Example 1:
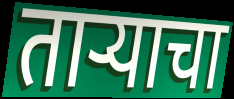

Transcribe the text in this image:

ताऱ्याचा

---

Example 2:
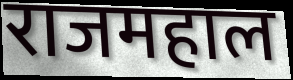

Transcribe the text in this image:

राजमहाल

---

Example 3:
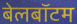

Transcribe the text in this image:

बेलबॉटम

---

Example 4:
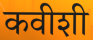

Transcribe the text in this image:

कवीशी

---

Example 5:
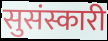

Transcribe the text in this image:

सुसंस्कारी